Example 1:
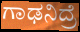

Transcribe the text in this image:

ಗಾಢನಿದ್ರೆ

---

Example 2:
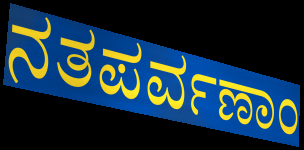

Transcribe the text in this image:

ನತಪರ್ವಣಾಂ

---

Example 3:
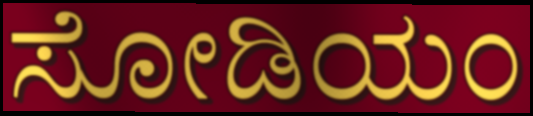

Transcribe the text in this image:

ಸೋಡಿಯಂ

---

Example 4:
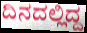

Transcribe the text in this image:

ದಿನದಲ್ಲಿದ್ದ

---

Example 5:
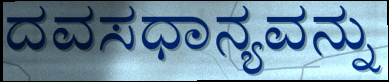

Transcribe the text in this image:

ದವಸಧಾನ್ಯವನ್ನು